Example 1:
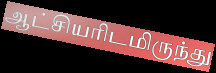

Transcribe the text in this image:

ஆட்சியரிடமிருந்து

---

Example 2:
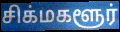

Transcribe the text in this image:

சிக்மகளூர்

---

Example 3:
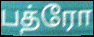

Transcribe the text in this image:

பத்ரோ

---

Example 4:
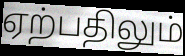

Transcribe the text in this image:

ஏற்பதிலும்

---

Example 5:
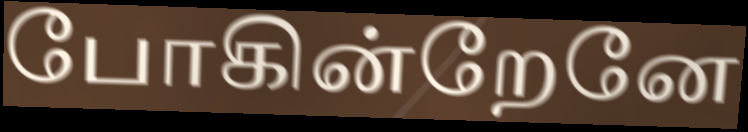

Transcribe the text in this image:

போகின்றேனே